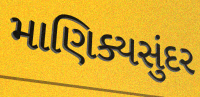
માણિક્યસુંદર